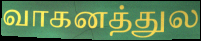
வாகனத்துல